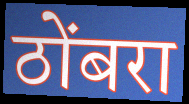
ठोंबरा